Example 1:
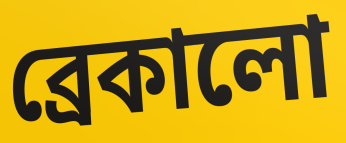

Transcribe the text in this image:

ব্রেকালো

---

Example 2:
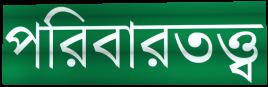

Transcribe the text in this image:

পরিবারতত্ত্ব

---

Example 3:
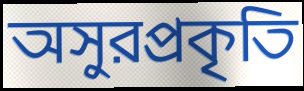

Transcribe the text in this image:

অসুরপ্রকৃতি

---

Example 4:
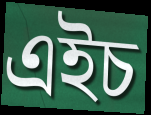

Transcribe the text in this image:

এইচ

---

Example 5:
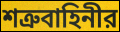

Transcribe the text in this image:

শত্রুবাহিনীর